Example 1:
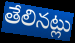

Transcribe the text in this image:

తేలినట్లు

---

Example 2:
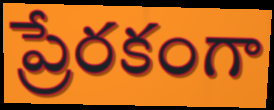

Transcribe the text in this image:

ప్రేరకంగా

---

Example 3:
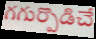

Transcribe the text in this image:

గగుర్పొడిచే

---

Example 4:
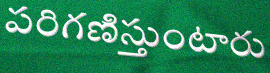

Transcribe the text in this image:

పరిగణిస్తుంటారు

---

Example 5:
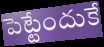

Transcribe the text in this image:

పెట్టేందుకే